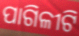
ପାଗିଳୀଟି